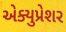
એક્યુપ્રેશર